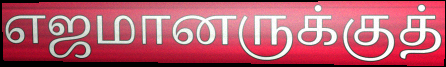
எஜமானருக்குத்